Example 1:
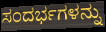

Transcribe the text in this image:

ಸಂದರ್ಭಗಳನ್ನು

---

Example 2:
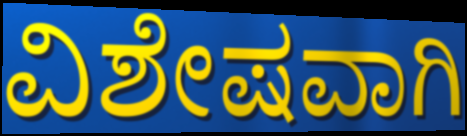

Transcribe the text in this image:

ವಿಶೇಷವಾಗಿ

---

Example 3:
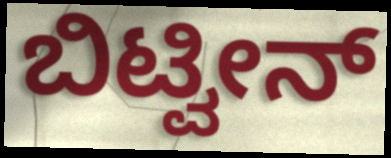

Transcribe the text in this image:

ಬಿಟ್ವೀನ್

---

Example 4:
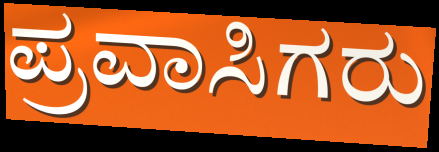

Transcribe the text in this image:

ಪ್ರವಾಸಿಗರು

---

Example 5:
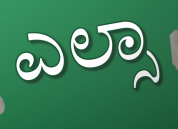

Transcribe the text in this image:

ಎಲ್ಸಾ